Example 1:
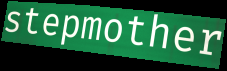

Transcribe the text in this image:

stepmother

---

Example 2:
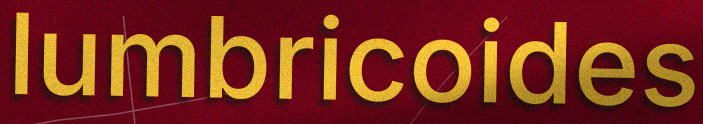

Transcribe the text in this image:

lumbricoides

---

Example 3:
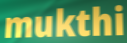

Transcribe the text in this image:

mukthi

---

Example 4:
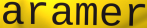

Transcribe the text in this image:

aramer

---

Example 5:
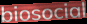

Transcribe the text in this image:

biosocial